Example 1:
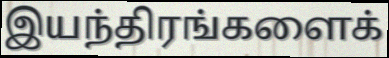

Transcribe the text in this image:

இயந்திரங்களைக்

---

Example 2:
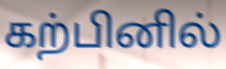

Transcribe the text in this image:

கற்பினில்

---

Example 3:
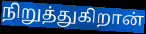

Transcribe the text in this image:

நிறுத்துகிறான்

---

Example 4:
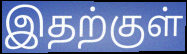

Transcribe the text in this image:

இதற்குள்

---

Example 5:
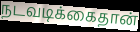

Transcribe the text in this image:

நடவடிக்கைதான்